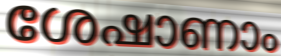
ശേഷാണാം